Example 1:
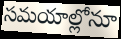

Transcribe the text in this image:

సమయాల్లోనూ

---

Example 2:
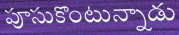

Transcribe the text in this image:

పూసుకొంటున్నాడు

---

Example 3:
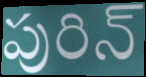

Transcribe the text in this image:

పురిన్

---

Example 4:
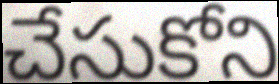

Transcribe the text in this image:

చేసుకోని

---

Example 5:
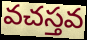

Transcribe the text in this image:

వచస్తవ